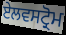
ਏਲਵਸਟ੍ਰੋਮ